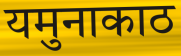
यमुनाकाठ